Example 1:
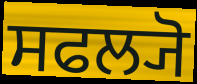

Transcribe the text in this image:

ਸਫਲ੍ਯੋ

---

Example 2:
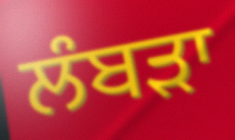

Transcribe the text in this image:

ਲੰਬੜਾ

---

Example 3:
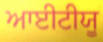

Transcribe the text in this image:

ਆਈਟੀਯੂ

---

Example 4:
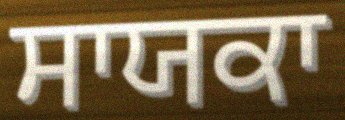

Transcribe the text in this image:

ਸਾਯਕਾ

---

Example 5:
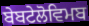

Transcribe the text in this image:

ਬੇਬਟੇਲੋਵਿਮਬ